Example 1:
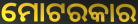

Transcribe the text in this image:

ମୋଟରକାର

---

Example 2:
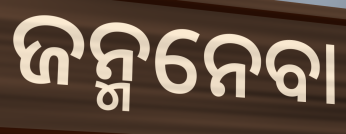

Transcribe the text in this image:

ଜନ୍ମନେବା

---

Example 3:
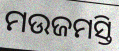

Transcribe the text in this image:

ମଉଜମସ୍ତି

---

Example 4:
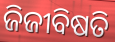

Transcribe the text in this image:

ଜିଜୀବିଷତି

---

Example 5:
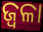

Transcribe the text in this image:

ଜ୍ଵଳା